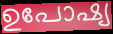
ഉപോഷ്യ